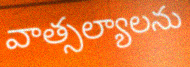
వాత్సల్యాలను